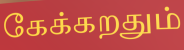
கேக்கறதும்